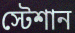
স্টেশান